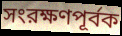
সংরক্ষণপূর্বক